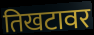
तिखटावर